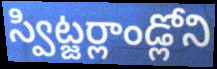
స్విట్జర్లాండ్లోని